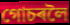
গোচৰলৈ